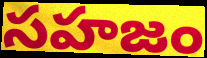
సహజం